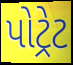
પોટ્રેટ